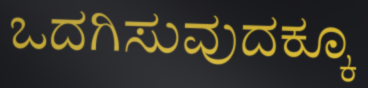
ಒದಗಿಸುವುದಕ್ಕೂ